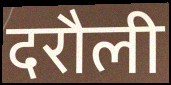
दरौली